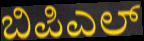
ಬಿಪಿಎಲ್